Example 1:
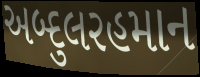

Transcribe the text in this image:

અબ્દુલરહમાન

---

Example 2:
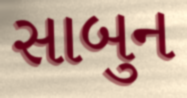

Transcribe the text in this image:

સાબુન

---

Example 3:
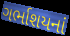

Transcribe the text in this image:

ગર્ભાશયનાં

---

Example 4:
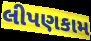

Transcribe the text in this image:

લીપણકામ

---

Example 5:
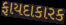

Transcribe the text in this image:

ફાયદાકારક